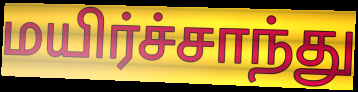
மயிர்ச்சாந்து